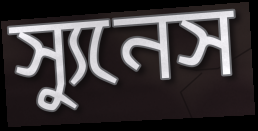
স্যুনেস